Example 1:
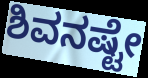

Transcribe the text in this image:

ಶಿವನಷ್ಟೇ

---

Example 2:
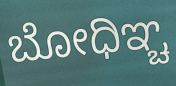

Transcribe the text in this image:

ಬೋಧಿಞ್ಚ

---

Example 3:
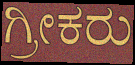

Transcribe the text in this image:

ಗ್ರೀಕರು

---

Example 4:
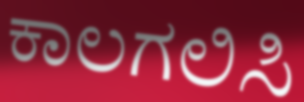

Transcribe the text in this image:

ಕಾಲಗಲಿಸಿ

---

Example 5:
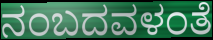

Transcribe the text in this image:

ನಂಬದವಳಂತೆ